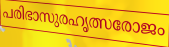
പരിഭാസുരഹൃത്സരോജം